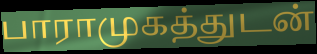
பாராமுகத்துடன்